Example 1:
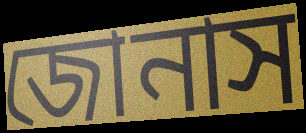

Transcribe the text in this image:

জোনাস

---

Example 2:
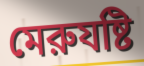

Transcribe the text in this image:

মেরুযষ্টি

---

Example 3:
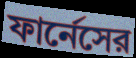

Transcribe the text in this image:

ফার্নেসের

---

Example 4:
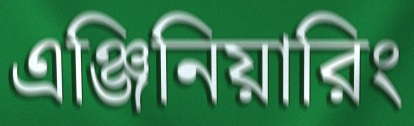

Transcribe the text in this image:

এঞ্জিনিয়ারিং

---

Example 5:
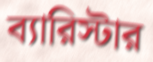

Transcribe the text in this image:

ব্যারিস্টার